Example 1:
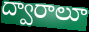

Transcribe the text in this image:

ద్వారాలూ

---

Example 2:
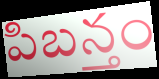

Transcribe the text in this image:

పిబన్తం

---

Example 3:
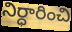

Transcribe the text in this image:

నిర్ధారించి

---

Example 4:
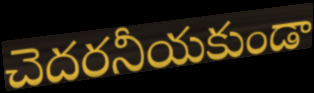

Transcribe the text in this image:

చెదరనీయకుండా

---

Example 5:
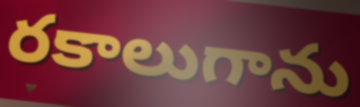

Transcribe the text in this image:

రకాలుగాను